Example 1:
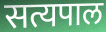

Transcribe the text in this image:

सत्यपाल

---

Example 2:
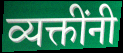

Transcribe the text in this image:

व्यक्तींनी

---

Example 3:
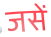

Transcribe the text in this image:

जसें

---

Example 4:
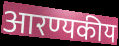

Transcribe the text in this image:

आरण्यकीय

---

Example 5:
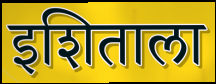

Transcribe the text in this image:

इशिताला